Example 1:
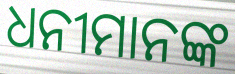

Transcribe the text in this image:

ଧନୀମାନଙ୍କ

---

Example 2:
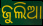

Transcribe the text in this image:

ଜୁଲିଆ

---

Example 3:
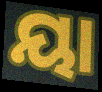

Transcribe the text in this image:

ୟା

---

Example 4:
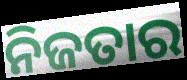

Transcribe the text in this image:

ନିଜତାର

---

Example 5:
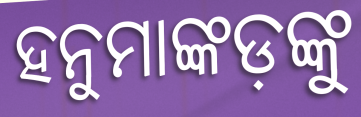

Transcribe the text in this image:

ହନୁମାଙ୍କଡ଼ଙ୍କୁ